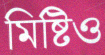
মিষ্টিও